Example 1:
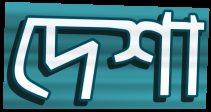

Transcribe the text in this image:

দেশা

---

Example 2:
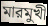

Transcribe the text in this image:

মারমুখী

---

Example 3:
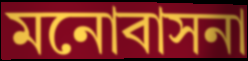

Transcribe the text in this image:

মনোবাসনা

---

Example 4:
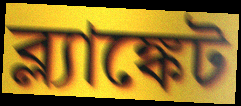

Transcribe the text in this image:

ব্ল্যাঙ্কেট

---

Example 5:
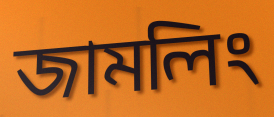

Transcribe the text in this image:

জামলিং